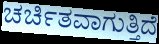
ಚರ್ಚಿತವಾಗುತ್ತಿದೆ